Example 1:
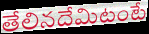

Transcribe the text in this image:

తేలినదేమిటంటే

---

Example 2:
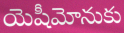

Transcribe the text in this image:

యెషీమోనుకు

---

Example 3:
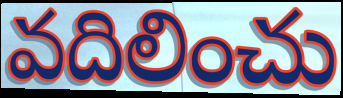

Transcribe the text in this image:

వదిలించు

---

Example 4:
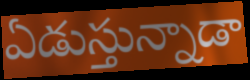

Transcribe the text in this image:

ఏడుస్తున్నాడా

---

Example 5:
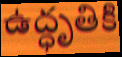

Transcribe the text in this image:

ఉద్ధృతికి